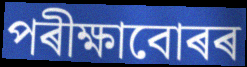
পৰীক্ষাবোৰৰ